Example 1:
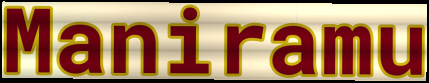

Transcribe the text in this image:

Maniramu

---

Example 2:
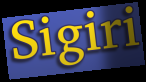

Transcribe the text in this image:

Sigiri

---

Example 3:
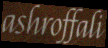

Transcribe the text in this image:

ashroffali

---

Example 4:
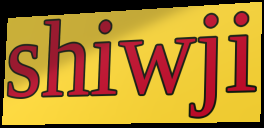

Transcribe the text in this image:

shiwji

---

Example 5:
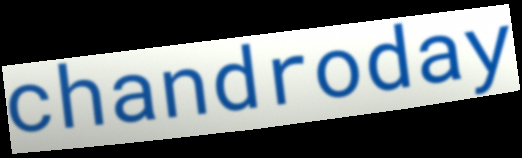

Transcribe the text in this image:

chandroday